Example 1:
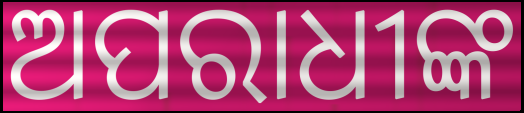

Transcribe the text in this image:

ଅପରାଧୀଙ୍କ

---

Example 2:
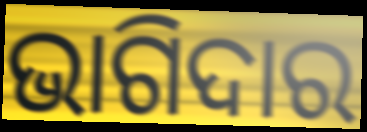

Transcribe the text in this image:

ଭାଗିଦାର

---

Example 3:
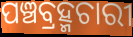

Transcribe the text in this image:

ପଞ୍ଚବ୍ରହ୍ମଚାରୀ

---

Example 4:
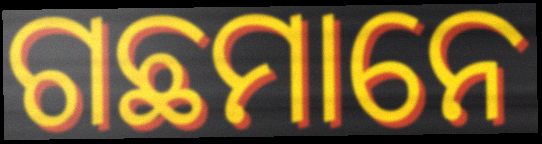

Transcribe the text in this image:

ଗଛମାନେ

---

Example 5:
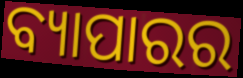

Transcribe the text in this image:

ବ୍ୟାପାରର